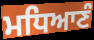
ਮਧਿਆਣੰ